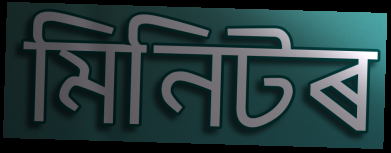
মিনিটৰ